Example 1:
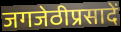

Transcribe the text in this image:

जगजेठीप्रसादें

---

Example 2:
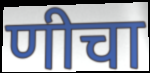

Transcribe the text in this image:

णीचा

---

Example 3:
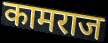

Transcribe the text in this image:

कामराज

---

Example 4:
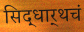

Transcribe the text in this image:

सिद्धार्थचं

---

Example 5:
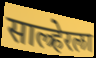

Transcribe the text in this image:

साल्हेरला